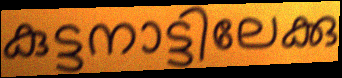
കുട്ടനാട്ടിലേക്കു